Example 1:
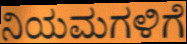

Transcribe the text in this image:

ನಿಯಮಗಳಿಗೆ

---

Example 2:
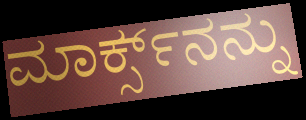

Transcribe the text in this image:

ಮಾರ್ಕ್ಸ್‌ನನ್ನು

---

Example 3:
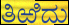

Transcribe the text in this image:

ತಿಱಿದು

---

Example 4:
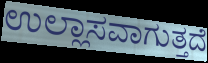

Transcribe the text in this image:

ಉಲ್ಲಾಸವಾಗುತ್ತದೆ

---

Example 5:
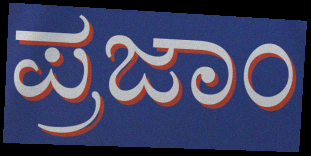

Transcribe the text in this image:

ಪ್ರಜಾಂ